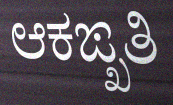
ಆಕಙ್ಖತಿ